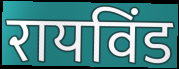
रायविंड